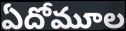
ఏదోమూల